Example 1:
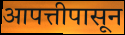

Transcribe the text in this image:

आपत्तीपासून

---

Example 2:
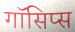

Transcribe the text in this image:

गॉसिप्स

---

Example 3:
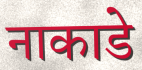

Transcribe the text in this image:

नाकाडे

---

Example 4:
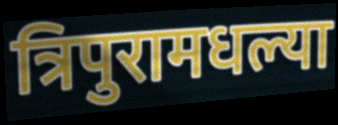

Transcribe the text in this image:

त्रिपुरामधल्या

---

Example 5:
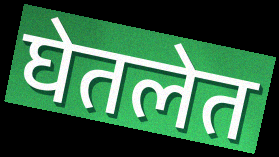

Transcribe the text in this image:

घेतलेत